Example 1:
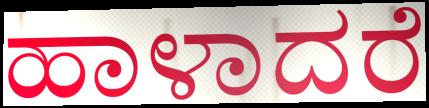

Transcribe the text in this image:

ಹಾಳಾದರೆ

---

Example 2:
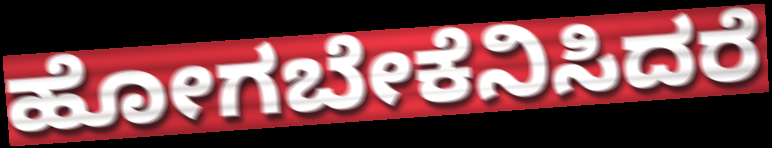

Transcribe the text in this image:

ಹೋಗಬೇಕೆನಿಸಿದರೆ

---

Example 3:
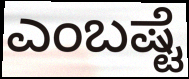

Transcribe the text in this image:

ಎಂಬಷ್ಟೆ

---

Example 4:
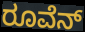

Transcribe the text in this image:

ರೂವೆನ್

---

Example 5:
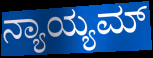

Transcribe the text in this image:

ನ್ಯಾಯ್ಯಮ್